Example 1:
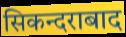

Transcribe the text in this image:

सिकन्दराबाद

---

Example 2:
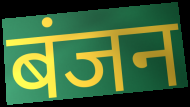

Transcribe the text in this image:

बंजन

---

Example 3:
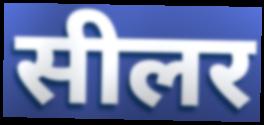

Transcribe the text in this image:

सीलर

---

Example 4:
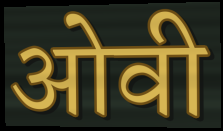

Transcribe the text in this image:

ओवी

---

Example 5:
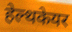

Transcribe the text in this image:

हेल्थकेयर